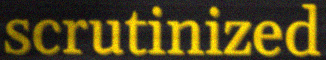
scrutinized